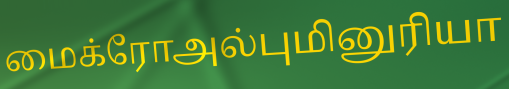
மைக்ரோஅல்புமினுரியா